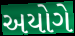
અયોગે